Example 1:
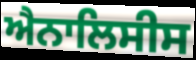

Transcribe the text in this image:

ਐਨਾਲਿਸੀਸ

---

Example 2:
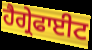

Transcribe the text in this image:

ਹੈਗ੍ਰੇਫਾਈਟ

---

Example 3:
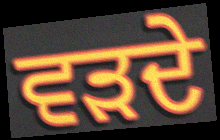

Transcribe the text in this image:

ਵੜਦੇ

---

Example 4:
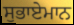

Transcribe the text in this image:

ਸੁਭਾਏਮਾਨ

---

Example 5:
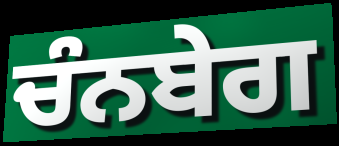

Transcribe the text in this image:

ਚੰਨਬੇਗ